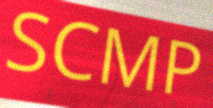
SCMP